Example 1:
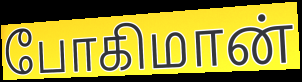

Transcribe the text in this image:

போகிமான்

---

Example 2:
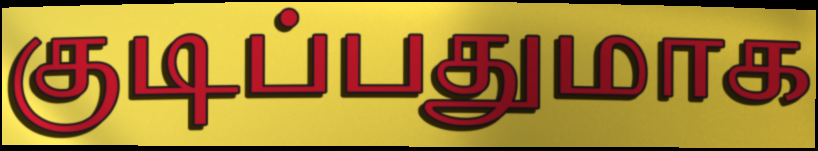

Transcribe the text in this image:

குடிப்பதுமாக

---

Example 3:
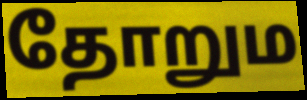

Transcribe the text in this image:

தோறும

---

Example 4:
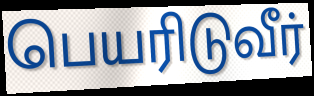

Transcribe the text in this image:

பெயரிடுவீர்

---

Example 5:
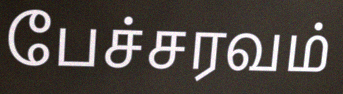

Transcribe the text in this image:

பேச்சரவம்